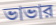
ভাভার